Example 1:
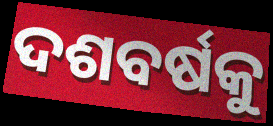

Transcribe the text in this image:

ଦଶବର୍ଷକୁ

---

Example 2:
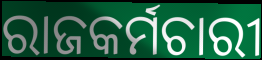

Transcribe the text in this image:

ରାଜକର୍ମଚାରୀ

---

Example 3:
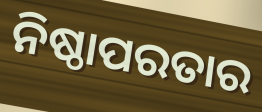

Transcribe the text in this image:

ନିଷ୍ଠାପରତାର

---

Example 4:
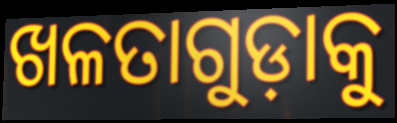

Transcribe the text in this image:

ଖଳତାଗୁଡ଼ାକୁ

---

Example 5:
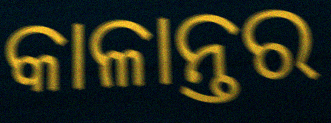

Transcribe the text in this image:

କାଳାନ୍ତର